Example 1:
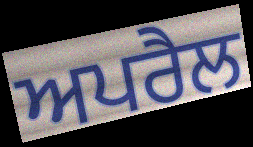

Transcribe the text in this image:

ਅਪਰੈਲ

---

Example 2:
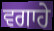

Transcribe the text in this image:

ਵਗਾਹੇ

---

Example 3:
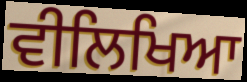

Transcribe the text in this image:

ਵੀਲਿਖਿਆ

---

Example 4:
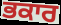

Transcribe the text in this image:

ਭਕਾਰ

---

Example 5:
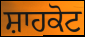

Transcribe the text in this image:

ਸ਼ਾਹਕੋਟ